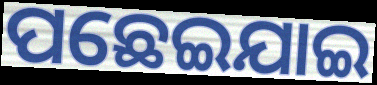
ପଛେଇଯାଇ